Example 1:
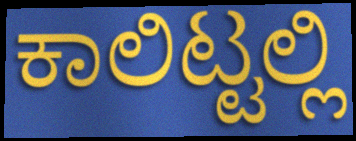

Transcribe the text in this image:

ಕಾಲಿಟ್ಟಲ್ಲಿ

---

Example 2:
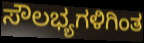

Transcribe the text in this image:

ಸೌಲಭ್ಯಗಳಿಗಿಂತ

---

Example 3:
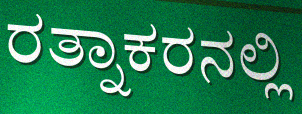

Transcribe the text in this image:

ರತ್ನಾಕರನಲ್ಲಿ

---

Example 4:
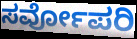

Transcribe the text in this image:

ಸರ್ವೋಪರಿ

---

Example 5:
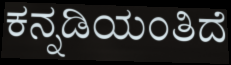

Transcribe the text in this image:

ಕನ್ನಡಿಯಂತಿದೆ